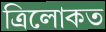
ত্ৰিলোকত